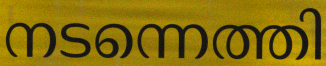
നടന്നെത്തി